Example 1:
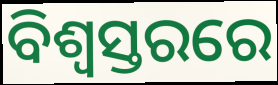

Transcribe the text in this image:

ବିଶ୍ୱସ୍ତରରେ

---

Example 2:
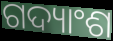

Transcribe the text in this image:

ଗଦ୍ୟାଂଶ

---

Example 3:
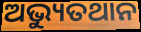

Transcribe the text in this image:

ଅଭ୍ୟୁତଥାନ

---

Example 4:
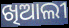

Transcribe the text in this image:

ଖିଆଲୀ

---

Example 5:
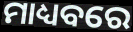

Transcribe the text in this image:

ମାଧ୍ୟବରେ